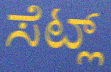
ಸೆಟ್ಲ್